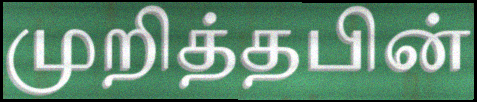
முறித்தபின்